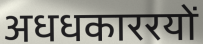
अधधकाररयों